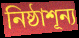
নিষ্ঠাশূন্য